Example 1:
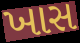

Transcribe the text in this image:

ખાસ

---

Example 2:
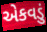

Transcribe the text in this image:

એકવડું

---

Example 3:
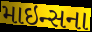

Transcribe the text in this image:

માઇન્સના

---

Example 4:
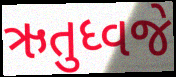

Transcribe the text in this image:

ઋતુધ્વજે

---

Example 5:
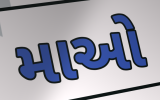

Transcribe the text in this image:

માઓ